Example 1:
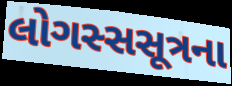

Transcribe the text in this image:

લોગસ્સસૂત્રના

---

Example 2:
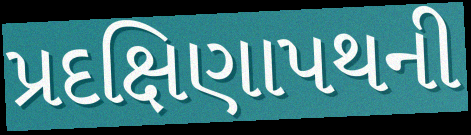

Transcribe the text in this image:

પ્રદક્ષિણાપથની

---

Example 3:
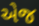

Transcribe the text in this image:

એજ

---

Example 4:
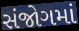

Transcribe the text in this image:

સંજોગમાં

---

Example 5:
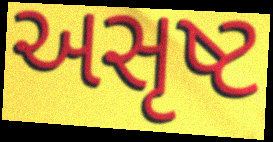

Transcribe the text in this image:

અસૃષ્ટ